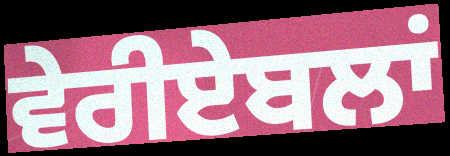
ਵੇਰੀਏਬਲਾਂ